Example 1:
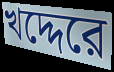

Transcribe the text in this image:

খদ্দেরে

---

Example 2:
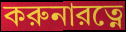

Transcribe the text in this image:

করুনারত্নে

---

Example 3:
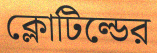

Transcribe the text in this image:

ক্লোটিল্ডের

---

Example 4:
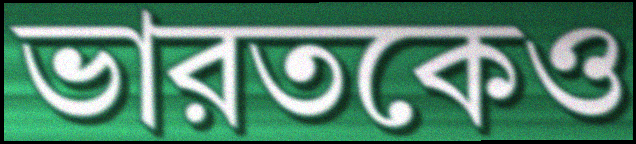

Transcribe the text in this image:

ভারতকেও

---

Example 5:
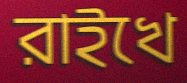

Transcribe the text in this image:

রাইখে